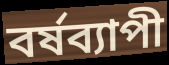
বর্ষব্যাপী